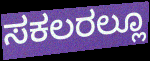
ಸಕಲರಲ್ಲೂ